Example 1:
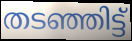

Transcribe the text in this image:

തടഞ്ഞിട്ട്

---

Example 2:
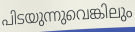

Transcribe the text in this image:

പിടയുന്നുവെങ്കിലും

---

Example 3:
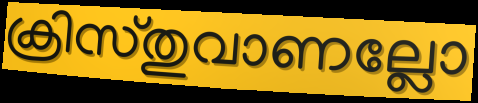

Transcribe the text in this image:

ക്രിസ്തുവാണല്ലോ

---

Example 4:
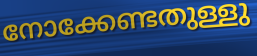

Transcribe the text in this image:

നോക്കേണ്ടതുള്ളു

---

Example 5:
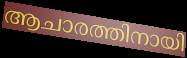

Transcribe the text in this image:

ആചാരത്തിനായി